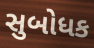
સુબોધક